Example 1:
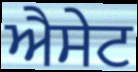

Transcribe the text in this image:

ਐਸੇਟ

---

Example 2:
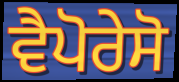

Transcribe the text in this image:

ਵੈਪੋਰੇਸੋ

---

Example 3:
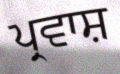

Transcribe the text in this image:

ਪ੍ਰਵਾਸ਼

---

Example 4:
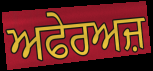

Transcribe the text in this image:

ਅਫੇਰਅਜ਼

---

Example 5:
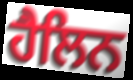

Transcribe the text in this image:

ਹੈਲਿਨ